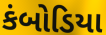
કંબોડિયા